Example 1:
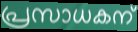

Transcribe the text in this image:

പ്രസാധകന്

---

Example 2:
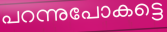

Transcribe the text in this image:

പറന്നുപോകട്ടെ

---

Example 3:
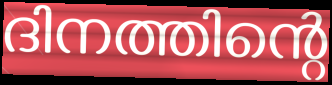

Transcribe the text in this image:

ദിനത്തിന്റെ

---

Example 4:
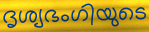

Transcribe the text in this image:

ദൃശ്യഭംഗിയുടെ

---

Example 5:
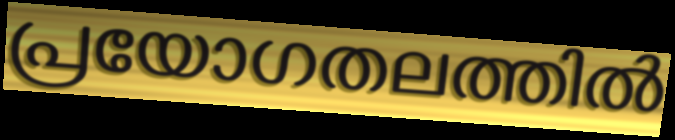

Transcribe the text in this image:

പ്രയോഗതലത്തിൽ